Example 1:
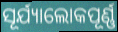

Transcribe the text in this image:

ସୂର୍ଯ୍ୟାଲୋକପୂର୍ଣ୍ଣ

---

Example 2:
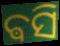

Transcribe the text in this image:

ଵସି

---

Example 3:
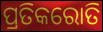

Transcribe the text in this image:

ପ୍ରତିକରୋତି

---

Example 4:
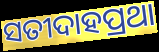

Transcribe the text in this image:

ସତୀଦାହପ୍ରଥା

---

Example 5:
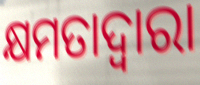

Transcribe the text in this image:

କ୍ଷମତାଦ୍ୱାରା